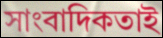
সাংবাদিকতাই